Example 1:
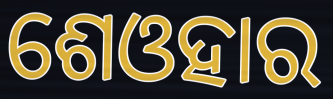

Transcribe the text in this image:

ଶେଓହାର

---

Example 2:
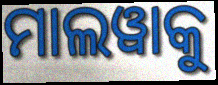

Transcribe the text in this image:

ମାଲୱାକୁ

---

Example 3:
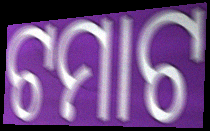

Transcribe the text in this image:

ଟମାଟ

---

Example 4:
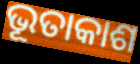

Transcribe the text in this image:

ଭୂତାକାଶ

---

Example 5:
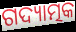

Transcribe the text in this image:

ଗଦ୍ୟାତ୍ମକ